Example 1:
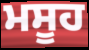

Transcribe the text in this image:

ਮਸੂਹ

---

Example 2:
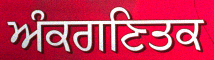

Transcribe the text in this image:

ਅੰਕਗਣਿਤਕ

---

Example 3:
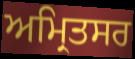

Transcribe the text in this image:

ਅਮ੍ਰਿਤਸਰ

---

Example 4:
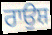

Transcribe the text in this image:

ਰਾਉਸ਼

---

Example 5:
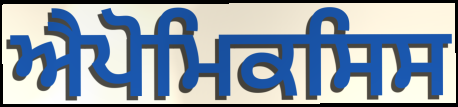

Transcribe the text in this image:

ਐਪੋਮਿਕਸਿਸ